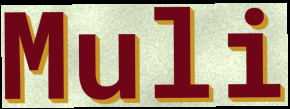
Muli